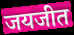
जयजीत